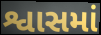
શ્વાસમાં